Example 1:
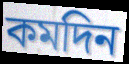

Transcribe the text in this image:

কমদিন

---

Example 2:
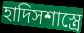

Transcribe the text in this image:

হাদিসশাস্ত্রে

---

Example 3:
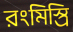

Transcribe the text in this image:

রংমিস্ত্রি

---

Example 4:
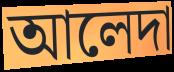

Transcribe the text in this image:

আলেদা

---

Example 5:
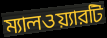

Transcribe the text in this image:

ম্যালওয়্যারটি